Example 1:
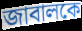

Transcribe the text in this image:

জাবালকে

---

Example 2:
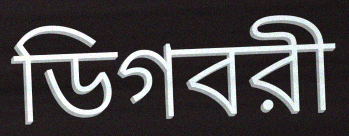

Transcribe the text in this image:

ডিগবরী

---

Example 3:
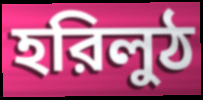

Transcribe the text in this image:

হরিলুঠ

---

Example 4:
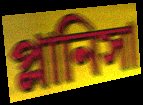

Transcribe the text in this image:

প্লানিসা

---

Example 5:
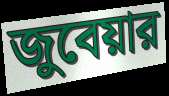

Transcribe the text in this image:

জুবেয়ার